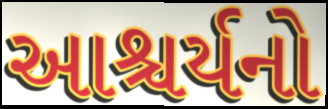
આશ્ચર્યનો